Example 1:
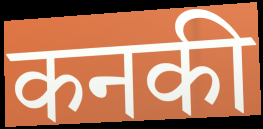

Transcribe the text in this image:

कनकी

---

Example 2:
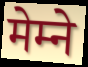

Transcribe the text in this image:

मेम्ने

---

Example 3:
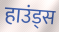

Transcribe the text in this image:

हाउंड्स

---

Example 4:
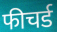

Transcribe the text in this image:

फीचर्ड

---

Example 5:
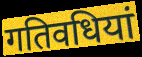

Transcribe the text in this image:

गतिवधियां